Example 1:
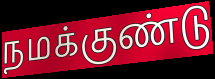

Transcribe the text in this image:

நமக்குண்டு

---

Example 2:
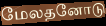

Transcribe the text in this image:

மேலதனோடு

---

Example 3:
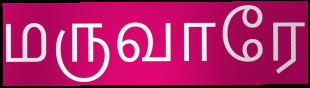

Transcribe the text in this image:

மருவாரே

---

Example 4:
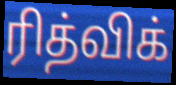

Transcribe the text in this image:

ரித்விக்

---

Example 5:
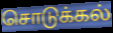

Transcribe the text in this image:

சொடுக்கல்